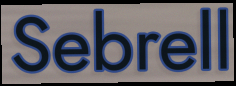
Sebrell